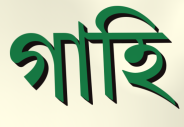
গাহি